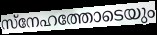
സ്നേഹത്തോടെയും